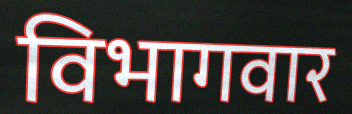
विभागवार